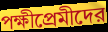
পক্ষীপ্রেমীদের